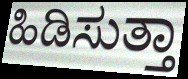
ಹಿಡಿಸುತ್ತಾ